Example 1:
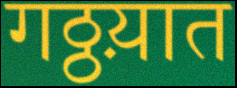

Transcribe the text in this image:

गठ्ठय़ात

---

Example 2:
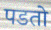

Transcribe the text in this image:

पडतो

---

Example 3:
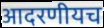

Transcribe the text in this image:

आदरणीयच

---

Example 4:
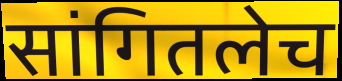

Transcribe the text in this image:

सांगितलेच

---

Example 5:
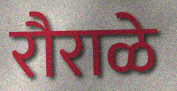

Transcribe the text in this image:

रौराळे